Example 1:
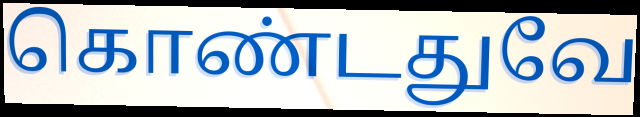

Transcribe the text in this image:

கொண்டதுவே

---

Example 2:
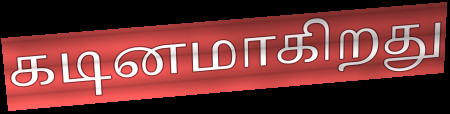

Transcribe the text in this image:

கடினமாகிறது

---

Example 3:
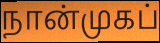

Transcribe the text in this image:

நான்முகப்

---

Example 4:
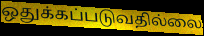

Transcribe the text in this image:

ஒதுக்கப்படுவதில்லை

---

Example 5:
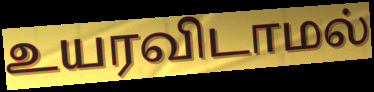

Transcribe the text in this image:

உயரவிடாமல்